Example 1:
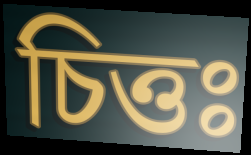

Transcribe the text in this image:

চিত্তঃ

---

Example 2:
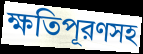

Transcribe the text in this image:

ক্ষতিপূরণসহ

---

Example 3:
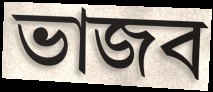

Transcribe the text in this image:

ভাজব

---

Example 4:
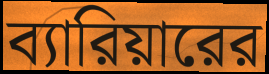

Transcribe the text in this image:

ব্যারিয়ারের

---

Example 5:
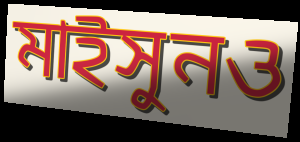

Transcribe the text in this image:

মাইসুনও